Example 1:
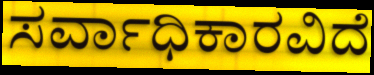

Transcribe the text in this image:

ಸರ್ವಾಧಿಕಾರವಿದೆ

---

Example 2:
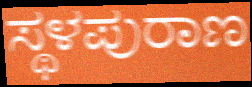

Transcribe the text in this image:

ಸ್ಥಳಪುರಾಣ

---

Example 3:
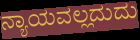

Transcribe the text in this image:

ನ್ಯಾಯವಲ್ಲದುದು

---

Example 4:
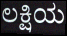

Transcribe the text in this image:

ಲಕ್ಷಿಯ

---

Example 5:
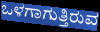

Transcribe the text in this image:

ಒಳಗಾಗುತ್ತಿರುವ